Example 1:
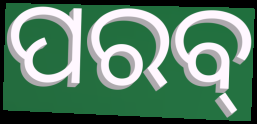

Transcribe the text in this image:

ପରବ୍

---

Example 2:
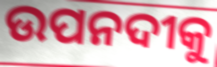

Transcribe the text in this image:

ଉପନଦୀକୁ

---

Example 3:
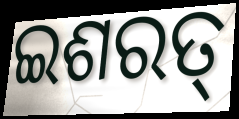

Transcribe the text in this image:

ଇଶରତ୍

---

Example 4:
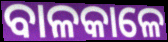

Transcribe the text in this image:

ବାଳକାଳେ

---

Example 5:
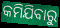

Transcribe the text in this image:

କମିଯିବାରୁ